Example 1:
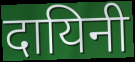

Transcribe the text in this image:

दायिनी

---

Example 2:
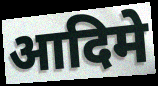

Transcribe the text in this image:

आदिमे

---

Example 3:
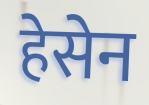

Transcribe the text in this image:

हेसेन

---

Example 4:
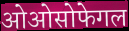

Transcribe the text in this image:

ओओसोफेगल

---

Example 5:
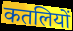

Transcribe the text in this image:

कतलियों